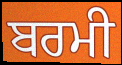
ਬਰਮੀ